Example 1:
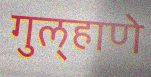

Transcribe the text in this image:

गुल्हाणे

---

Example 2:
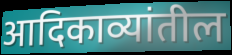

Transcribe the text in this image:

आदिकाव्यांतील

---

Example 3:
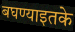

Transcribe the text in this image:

बघण्याइतके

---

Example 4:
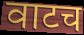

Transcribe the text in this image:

वाटच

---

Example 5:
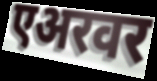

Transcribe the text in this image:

एअरवर